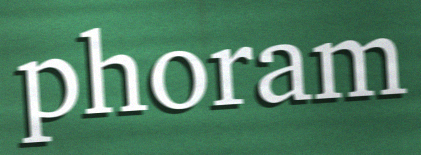
phoram